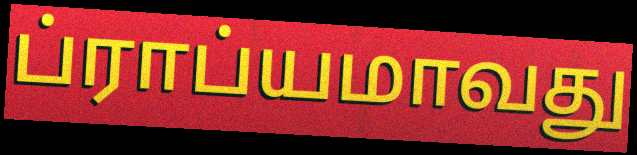
ப்ராப்யமாவது